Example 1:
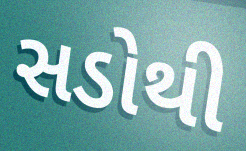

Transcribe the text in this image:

સડોથી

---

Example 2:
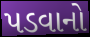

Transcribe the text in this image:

પડવાનો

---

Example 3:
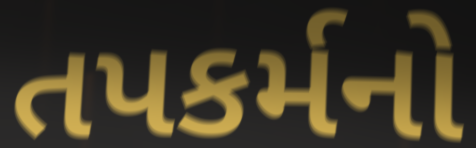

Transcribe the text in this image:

તપકર્મનો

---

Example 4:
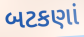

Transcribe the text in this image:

બટકણાં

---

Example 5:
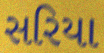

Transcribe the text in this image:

સરિયા